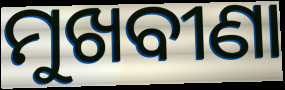
ମୁଖବୀଣା